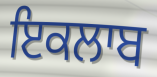
ਇਕਲਾਬ